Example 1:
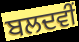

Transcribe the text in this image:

ਬਲਦਵੀਂ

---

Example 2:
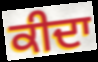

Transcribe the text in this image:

ਕੀਦਾ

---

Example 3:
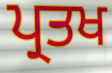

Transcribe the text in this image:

ਪ੍ਰਤਖ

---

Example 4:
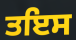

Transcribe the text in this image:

ਤਇਸ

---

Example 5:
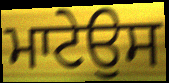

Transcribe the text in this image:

ਮਾਟੇਉਸ